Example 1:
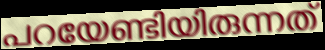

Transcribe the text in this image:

പറയേണ്ടിയിരുന്നത്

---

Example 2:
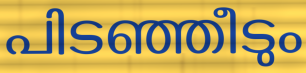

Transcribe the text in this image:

പിടഞ്ഞീടും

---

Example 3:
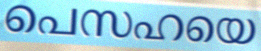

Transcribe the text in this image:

പെസഹയെ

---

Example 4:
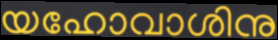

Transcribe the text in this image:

യഹോവാശിനു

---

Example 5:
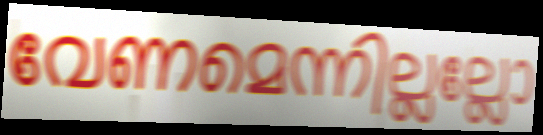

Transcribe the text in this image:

വേണമെന്നില്ലല്ലോ